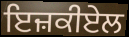
ਇਜ਼ਕੀਏਲ